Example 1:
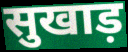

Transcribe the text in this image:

सुखाड़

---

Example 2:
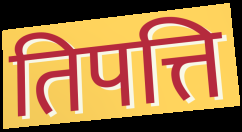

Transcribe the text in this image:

तिपत्ति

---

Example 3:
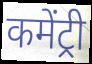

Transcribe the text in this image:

कमेंट्री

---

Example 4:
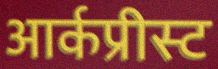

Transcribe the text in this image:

आर्कप्रीस्ट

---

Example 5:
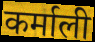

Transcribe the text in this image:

कर्माली